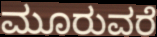
ಮೂರುವರೆ